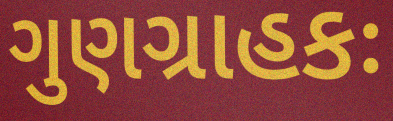
ગુણગ્રાહકઃ